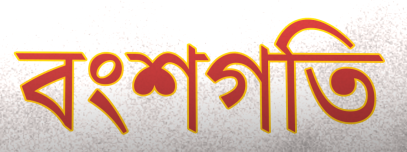
বংশগতি